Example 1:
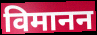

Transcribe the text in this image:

विमानन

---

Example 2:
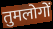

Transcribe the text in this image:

तुमलोगों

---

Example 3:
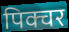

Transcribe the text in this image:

पिक्चर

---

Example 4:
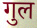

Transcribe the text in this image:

गुल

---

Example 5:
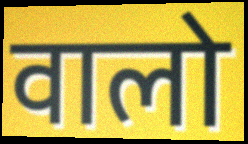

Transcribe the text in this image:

वालो